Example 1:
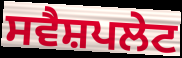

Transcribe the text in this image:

ਸਵੈਸ਼ਪਲੇਟ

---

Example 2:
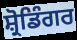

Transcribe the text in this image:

ਸ਼੍ਰੋਡਿੰਗਰ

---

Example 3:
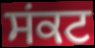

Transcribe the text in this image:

ਸਂਕਟ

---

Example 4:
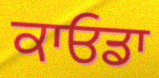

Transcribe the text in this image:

ਕਾਓਡਾ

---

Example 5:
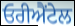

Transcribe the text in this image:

ਓਰੀਐਂਟੇਲ